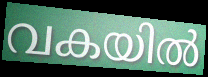
വകയിൽ